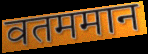
वतममान